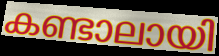
കണ്ടാലായി